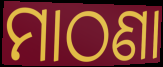
ମାଠଣା